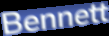
Bennett